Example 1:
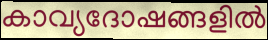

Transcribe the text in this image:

കാവ്യദോഷങ്ങളിൽ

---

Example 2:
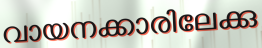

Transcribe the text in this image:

വായനക്കാരിലേക്കു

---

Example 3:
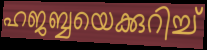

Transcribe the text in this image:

ഹജബ്ബയെക്കുറിച്ച്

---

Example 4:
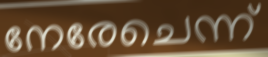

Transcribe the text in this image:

നേരേചെന്ന്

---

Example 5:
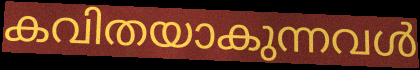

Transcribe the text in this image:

കവിതയാകുന്നവൾ